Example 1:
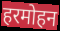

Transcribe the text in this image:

हरमोहन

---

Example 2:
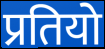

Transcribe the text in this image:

प्रतियो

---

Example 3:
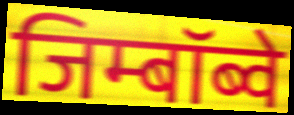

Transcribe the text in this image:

जिम्बॉब्वे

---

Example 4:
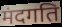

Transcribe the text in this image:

मंदगति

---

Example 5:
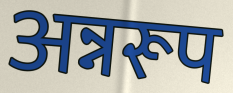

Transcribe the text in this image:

अन्नरूप